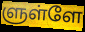
ளுள்ளே